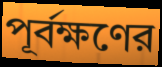
পূর্বক্ষণের